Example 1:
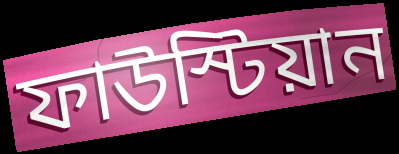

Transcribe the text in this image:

ফাউস্টিয়ান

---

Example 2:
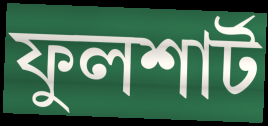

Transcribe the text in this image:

ফুলশার্ট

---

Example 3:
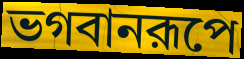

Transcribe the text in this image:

ভগবানরূপে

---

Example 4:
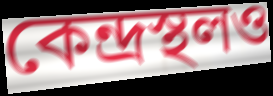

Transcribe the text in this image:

কেন্দ্রস্থলও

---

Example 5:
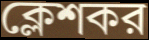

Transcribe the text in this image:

ক্লেশকর